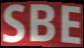
SBE